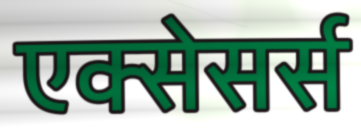
एक्सेसर्स